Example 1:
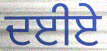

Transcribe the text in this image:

ਦਈਏ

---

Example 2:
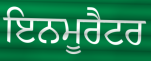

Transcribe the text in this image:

ਇਨਮੂਰੈਟਰ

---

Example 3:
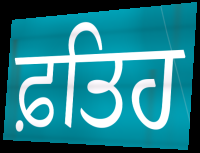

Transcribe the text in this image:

ਫ਼ਤਿਹ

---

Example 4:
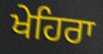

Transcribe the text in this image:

ਖੇਹਿਰਾ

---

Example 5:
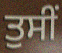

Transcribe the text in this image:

ਤੁਸੀਂ